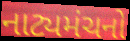
નાટ્યમંચનો